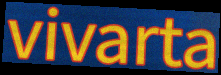
vivarta